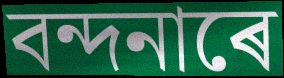
বন্দনাৰে